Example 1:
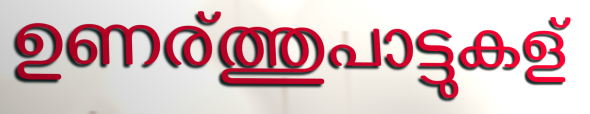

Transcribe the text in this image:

ഉണര്ത്തുപാട്ടുകള്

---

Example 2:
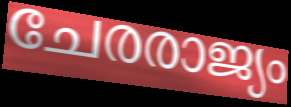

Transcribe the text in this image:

ചേരരാജ്യം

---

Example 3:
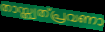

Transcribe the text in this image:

താസ്ത്വത്പ്രവണാ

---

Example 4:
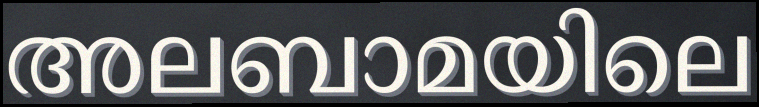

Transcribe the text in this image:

അലബാമയിലെ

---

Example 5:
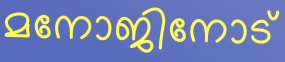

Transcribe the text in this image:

മനോജിനോട്